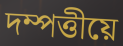
দম্পত্তীয়ে